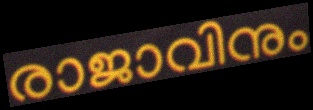
രാജാവിനും